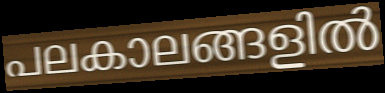
പലകാലങ്ങളിൽ